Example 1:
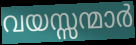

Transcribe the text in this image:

വയസ്സന്മാർ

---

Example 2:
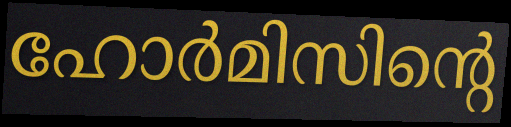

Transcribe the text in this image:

ഹോർമിസിന്റെ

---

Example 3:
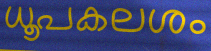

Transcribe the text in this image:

ധൂപകലശം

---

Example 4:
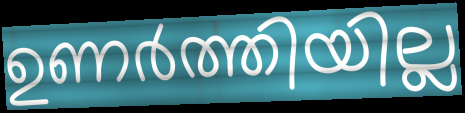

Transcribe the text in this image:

ഉണർത്തിയില്ല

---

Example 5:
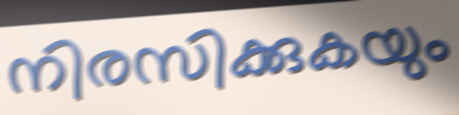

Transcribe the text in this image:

നിരസിക്കുകയും